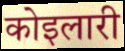
कोइलारी